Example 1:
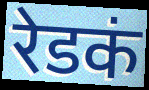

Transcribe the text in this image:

रेडकं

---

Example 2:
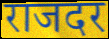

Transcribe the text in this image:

राजदर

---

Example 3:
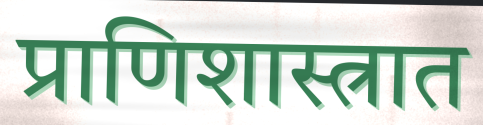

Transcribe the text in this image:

प्राणिशास्त्रात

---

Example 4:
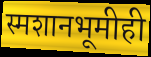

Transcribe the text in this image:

स्मशानभूमीही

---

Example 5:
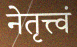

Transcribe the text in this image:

नेतृत्त्वं